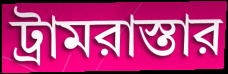
ট্রামরাস্তার